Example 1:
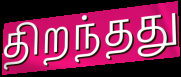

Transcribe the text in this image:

திறந்தது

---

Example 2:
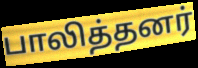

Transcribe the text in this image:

பாலித்தனர்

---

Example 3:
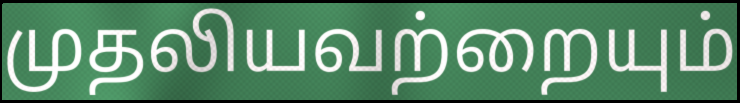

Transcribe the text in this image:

முதலியவற்றையும்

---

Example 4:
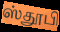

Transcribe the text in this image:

ஸ்தூபி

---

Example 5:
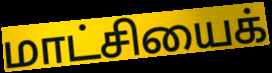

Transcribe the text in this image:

மாட்சியைக்